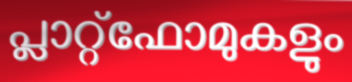
പ്ലാറ്റ്ഫോമുകളും